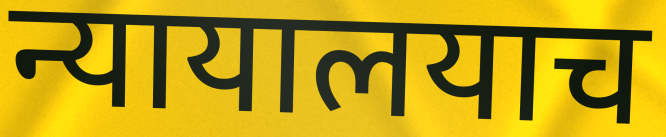
न्यायालयाच